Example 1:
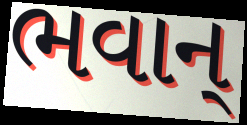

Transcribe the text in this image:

ભવાન્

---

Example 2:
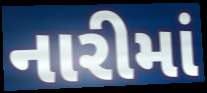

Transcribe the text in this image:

નારીમાં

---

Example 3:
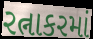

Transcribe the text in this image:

રત્નાકરમાં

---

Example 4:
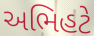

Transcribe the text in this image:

અભિહટે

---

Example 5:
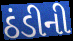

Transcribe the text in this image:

ઠંડીની